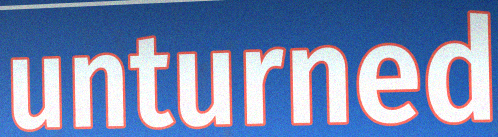
unturned